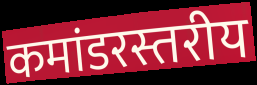
कमांडरस्तरीय